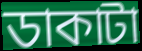
ডাকাটা